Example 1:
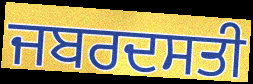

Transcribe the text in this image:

ਜਬਰਦਸਤੀ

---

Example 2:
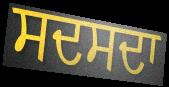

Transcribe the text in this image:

ਸਦਸਦਾ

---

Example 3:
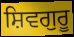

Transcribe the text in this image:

ਸ਼ਿਵਗੁਰੂ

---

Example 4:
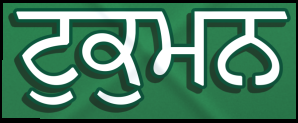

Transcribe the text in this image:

ਟੁਕੁਮਨ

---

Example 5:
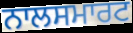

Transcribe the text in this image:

ਨਾਲਸਮਾਰਟ